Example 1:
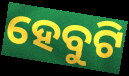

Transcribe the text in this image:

ହେବୁଟି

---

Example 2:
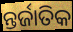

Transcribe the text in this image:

ନ୍ତର୍ଜାତିକ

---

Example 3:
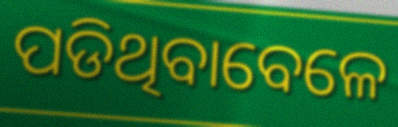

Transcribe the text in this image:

ପଡିଥିବାବେଳେ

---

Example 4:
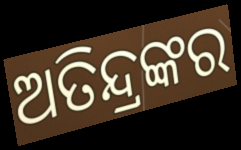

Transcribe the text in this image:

ଅତିନ୍ଦ୍ରଙ୍କର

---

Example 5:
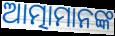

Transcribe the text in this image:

ଆତ୍ମାମାନଙ୍କ